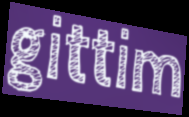
gittim